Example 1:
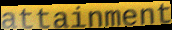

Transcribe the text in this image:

attainment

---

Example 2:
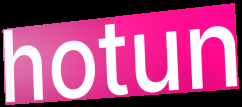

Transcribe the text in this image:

hotun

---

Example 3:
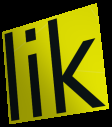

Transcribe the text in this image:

lik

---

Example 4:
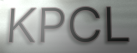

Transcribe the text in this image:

KPCL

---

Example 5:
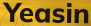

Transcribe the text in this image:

Yeasin